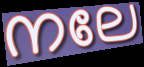
നലേ